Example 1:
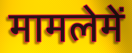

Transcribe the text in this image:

मामलेमें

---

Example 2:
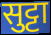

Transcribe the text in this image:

सुट्टा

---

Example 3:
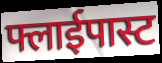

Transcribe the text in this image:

फ्लाईपास्ट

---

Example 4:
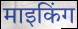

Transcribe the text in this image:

माइकिंग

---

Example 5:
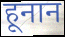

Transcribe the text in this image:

हूनान